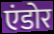
एंडोर